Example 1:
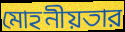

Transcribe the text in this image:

মোহনীয়তার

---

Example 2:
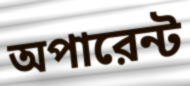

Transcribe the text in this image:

অপারেন্ট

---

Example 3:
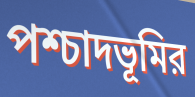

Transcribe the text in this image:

পশ্চাদভূমির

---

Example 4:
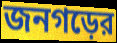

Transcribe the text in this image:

জনগড়ের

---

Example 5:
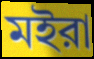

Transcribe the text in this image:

মইরা